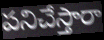
పనిచేస్తారా